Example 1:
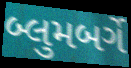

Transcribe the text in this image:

બ્લુમબર્ગે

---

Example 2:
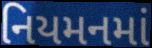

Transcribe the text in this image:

નિયમનમાં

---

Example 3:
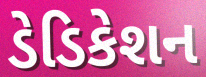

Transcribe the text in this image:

ડેડિકેશન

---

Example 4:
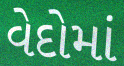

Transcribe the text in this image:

વેદોમાં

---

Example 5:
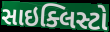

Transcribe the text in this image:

સાઇક્લિસ્ટો